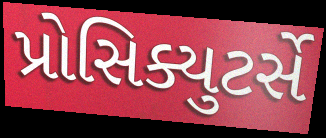
પ્રોસિક્યુટર્સે